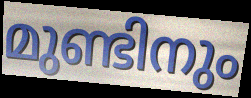
മുണ്ടിനും